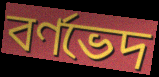
বর্ণভেদ